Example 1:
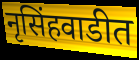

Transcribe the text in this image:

नृसिंहवाडीत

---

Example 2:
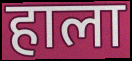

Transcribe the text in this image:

हाला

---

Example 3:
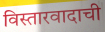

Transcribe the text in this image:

विस्तारवादाची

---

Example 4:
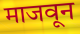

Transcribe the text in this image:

माजवून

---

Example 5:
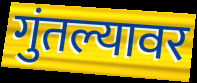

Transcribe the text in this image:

गुंतल्यावर